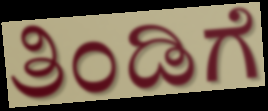
ತಿಂಡಿಗೆ